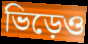
ভিড়েও